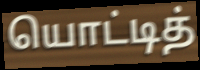
யொட்டித்